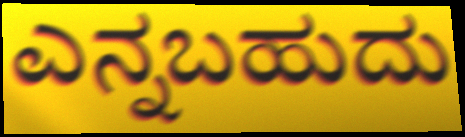
ಎನ್ನಬಹುದು